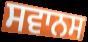
ਸਵਾਨਸ